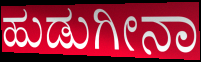
ಹುಡುಗೀನಾ